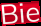
Bie